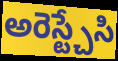
అరెస్ట్చేసి